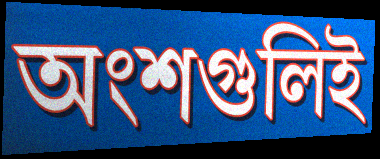
অংশগুলিই